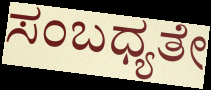
ಸಂಬಧ್ಯತೇ